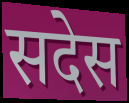
सदेस